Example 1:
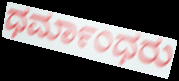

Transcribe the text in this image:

ಧರ್ಮಾಂಧರು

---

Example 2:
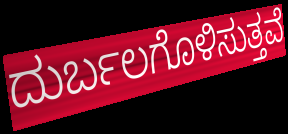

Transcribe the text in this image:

ದುರ್ಬಲಗೊಳಿಸುತ್ತವೆ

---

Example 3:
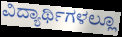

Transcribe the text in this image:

ವಿದ್ಯಾರ್ಥಿಗಳಲ್ಲೂ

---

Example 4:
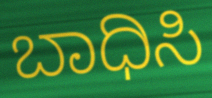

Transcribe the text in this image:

ಬಾಧಿಸಿ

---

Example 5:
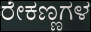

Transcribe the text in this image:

ರೇಕಣ್ಣಗಳ